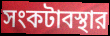
সংকটাবস্থার